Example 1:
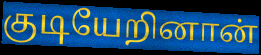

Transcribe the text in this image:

குடியேறினான்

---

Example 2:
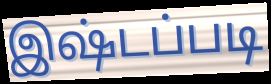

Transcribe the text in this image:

இஷ்டப்படி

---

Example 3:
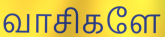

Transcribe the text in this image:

வாசிகளே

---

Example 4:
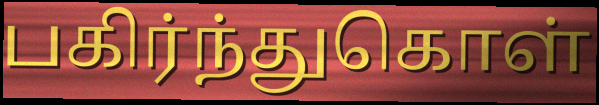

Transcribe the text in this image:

பகிர்ந்துகொள்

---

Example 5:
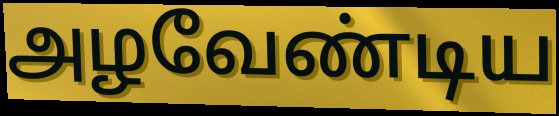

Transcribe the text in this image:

அழவேண்டிய